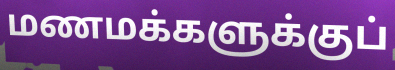
மணமக்களுக்குப்